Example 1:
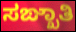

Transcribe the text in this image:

ಸಙ್ಖಾತಿ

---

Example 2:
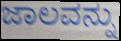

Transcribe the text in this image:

ಜಾಲವನ್ನು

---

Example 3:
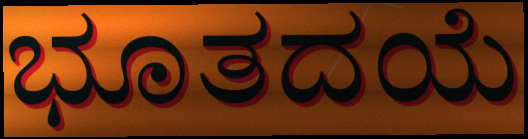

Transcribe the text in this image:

ಭೂತದಯೆ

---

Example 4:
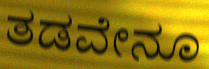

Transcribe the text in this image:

ತಡವೇನೂ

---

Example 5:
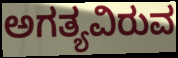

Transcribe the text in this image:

ಅಗತ್ಯವಿರುವ